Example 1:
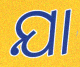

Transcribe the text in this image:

ଯା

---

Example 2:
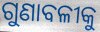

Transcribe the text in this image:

ଗୁଣାବଳୀକୁ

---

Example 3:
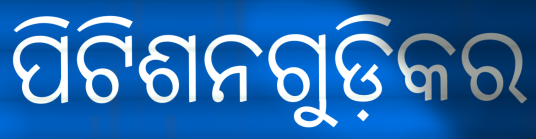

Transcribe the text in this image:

ପିଟିଶନଗୁଡ଼ିକର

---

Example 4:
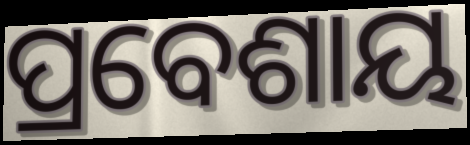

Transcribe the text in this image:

ପ୍ରବେଶାୟ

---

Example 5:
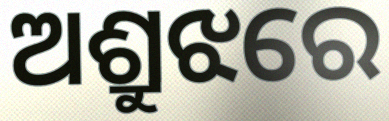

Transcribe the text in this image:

ଅଶ୍ରୁଝରେ